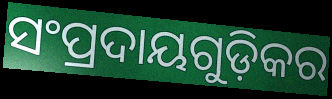
ସଂପ୍ରଦାୟଗୁଡ଼ିକର